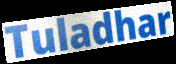
Tuladhar